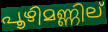
പൂഴിമണ്ണില്